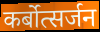
कर्बोत्सर्जन